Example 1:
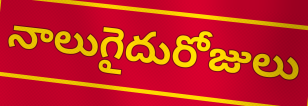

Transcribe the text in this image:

నాలుగైదురోజులు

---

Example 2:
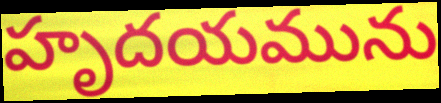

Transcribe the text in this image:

హృదయమును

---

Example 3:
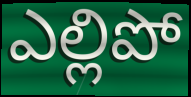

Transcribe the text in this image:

ఎల్లిపో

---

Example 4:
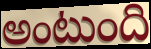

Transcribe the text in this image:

అంటుంది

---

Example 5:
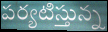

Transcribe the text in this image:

పర్యటిస్తున్న